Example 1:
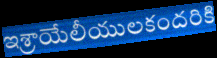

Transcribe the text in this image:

ఇశ్రాయేలీయులకందరికి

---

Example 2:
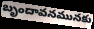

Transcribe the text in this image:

బృందావనమునకు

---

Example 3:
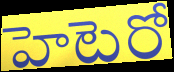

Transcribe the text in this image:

హెటెరో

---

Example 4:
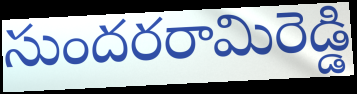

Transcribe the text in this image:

సుందరరామిరెడ్డి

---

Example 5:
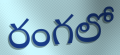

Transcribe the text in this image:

రంగలో